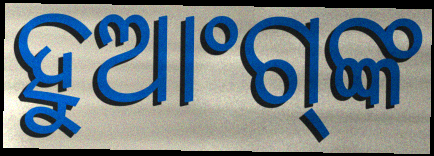
ହୁଆଂଗ୍‍ଙ୍କ